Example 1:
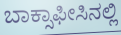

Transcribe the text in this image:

ಬಾಕ್ಸಾಫೀಸಿನಲ್ಲಿ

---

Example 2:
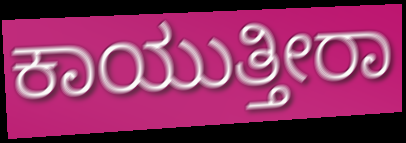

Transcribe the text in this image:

ಕಾಯುತ್ತೀರಾ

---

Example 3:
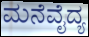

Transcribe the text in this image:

ಮನೆವೈದ್ಯ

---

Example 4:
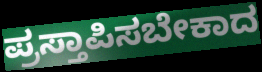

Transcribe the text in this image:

ಪ್ರಸ್ತಾಪಿಸಬೇಕಾದ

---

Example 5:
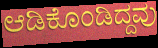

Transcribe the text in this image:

ಆಡಿಕೊಂಡಿದ್ದವು